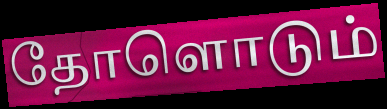
தோளொடும்